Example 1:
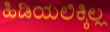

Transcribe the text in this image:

ಹಿಡಿಯಲಿಕ್ಕಿಲ್ಲ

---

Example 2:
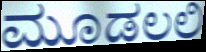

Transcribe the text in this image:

ಮೂಡಲಲಿ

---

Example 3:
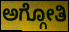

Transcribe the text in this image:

ಅಗ್ಗೋತಿ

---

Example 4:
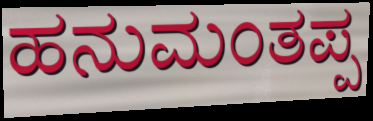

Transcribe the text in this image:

ಹನುಮಂತಪ್ಪ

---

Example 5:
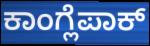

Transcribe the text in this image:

ಕಾಂಗ್ಲೆಪಾಕ್